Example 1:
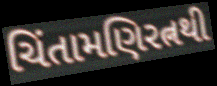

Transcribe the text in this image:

ચિંતામણિરત્નથી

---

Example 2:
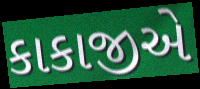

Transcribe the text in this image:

કાકાજીએ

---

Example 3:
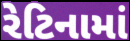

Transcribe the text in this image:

રેટિનામાં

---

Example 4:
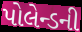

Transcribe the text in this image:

પોલેન્ડની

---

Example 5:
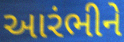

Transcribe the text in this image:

આરંભીને